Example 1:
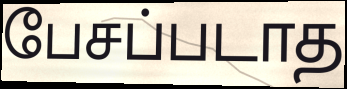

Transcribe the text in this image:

பேசப்படாத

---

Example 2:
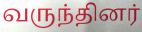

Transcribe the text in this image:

வருந்தினர்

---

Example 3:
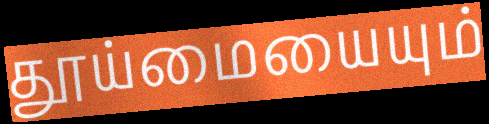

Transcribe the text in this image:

தூய்மையையும்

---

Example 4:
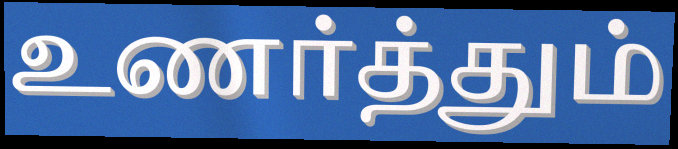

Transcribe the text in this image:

உணர்த்தும்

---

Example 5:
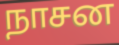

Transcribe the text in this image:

நாசன